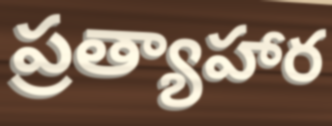
ప్రత్యాహార